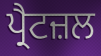
ਪ੍ਰੈਟਜ਼ਲ